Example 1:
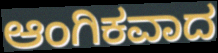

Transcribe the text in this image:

ಆಂಗಿಕವಾದ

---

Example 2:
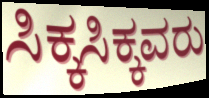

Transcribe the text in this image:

ಸಿಕ್ಕಸಿಕ್ಕವರು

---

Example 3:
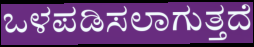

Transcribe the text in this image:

ಒಳಪಡಿಸಲಾಗುತ್ತದೆ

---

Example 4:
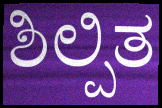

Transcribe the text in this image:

ಶಿಲ್ಪಿತ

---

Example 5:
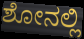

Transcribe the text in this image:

ಶೋನಲ್ಲಿ